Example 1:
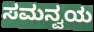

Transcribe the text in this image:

ಸಮನ್ವಯ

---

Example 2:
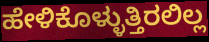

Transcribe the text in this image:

ಹೇಳಿಕೊಳ್ಳುತ್ತಿರಲಿಲ್ಲ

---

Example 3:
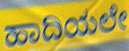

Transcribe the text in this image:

ಹಾದಿಯಲೇ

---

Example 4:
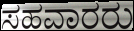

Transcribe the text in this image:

ಸಹವಾರರು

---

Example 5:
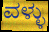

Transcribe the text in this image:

ವಳ್ಳು